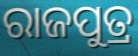
ରାଜପୁତ୍ର